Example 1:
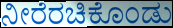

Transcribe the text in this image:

ನೀರೆರಚಿಕೊಂಡು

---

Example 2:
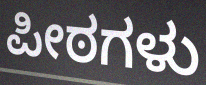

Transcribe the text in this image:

ಪೀಠಗಳು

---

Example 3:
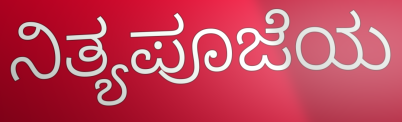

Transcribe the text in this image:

ನಿತ್ಯಪೂಜೆಯ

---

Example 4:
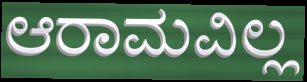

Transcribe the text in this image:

ಆರಾಮವಿಲ್ಲ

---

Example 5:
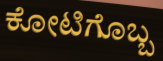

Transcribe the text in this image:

ಕೋಟಿಗೊಬ್ಬ